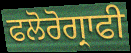
ਫਲੋਰੋਗ੍ਰਾਫੀ